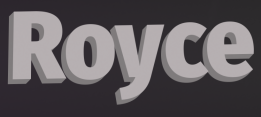
Royce